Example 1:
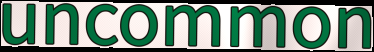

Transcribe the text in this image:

uncommon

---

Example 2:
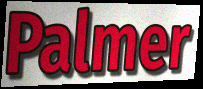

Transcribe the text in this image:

Palmer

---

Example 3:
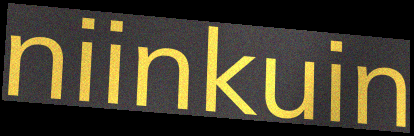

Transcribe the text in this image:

niinkuin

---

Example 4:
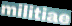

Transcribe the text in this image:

militiae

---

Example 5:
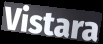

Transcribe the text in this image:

Vistara